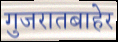
गुजरातबाहेर